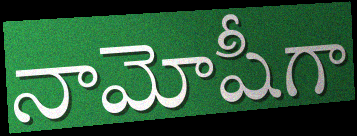
నామోషీగా